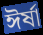
ঈর্ষা